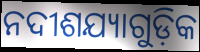
ନଦୀଶଯ୍ୟାଗୁଡ଼ିକ